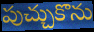
పుచ్చుకొను